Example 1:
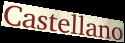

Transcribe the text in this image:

Castellano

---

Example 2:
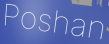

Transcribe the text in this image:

Poshan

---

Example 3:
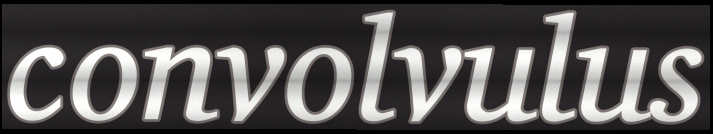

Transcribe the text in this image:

convolvulus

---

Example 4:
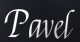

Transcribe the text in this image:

Pavel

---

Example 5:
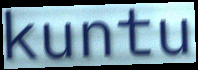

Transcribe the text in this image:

kuntu